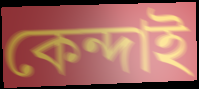
কেন্দাই